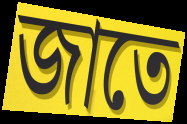
জাতে